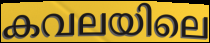
കവലയിലെ